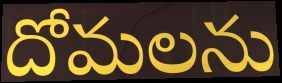
దోమలను